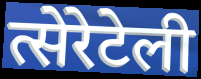
त्सेरेटेली